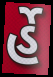
ર્હે